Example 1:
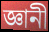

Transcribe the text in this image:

জ্ঞানী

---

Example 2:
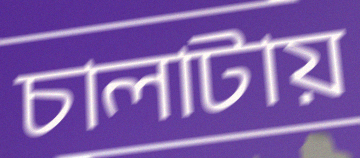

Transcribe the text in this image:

চালাটায়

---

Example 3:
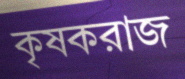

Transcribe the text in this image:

কৃষকরাজ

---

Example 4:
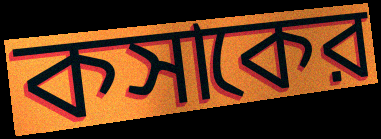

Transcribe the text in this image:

কসাকের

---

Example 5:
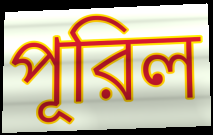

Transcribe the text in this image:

পূরিল